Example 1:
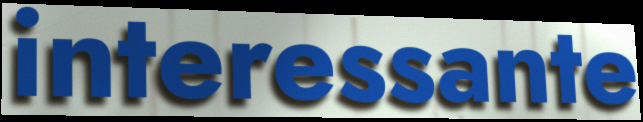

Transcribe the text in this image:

interessante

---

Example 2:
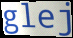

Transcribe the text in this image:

glej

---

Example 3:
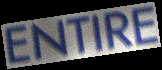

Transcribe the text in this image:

ENTIRE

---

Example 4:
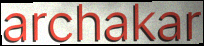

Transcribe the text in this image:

archakar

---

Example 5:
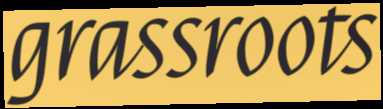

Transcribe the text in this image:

grassroots